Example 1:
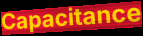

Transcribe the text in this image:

Capacitance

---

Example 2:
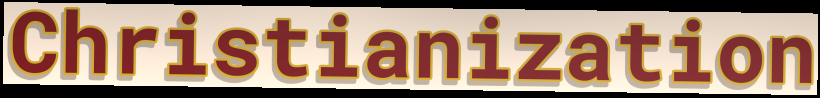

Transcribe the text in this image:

Christianization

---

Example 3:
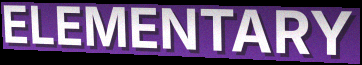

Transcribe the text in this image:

ELEMENTARY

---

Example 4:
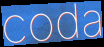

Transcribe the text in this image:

coda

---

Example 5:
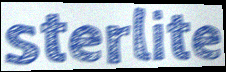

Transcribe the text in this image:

sterlite